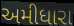
અમીધારા